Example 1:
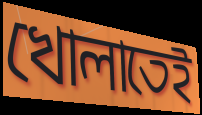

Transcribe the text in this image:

খোলাতেই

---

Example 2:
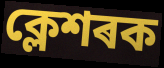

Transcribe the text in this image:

ক্লেশৰক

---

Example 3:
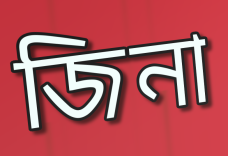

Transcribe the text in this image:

জিনা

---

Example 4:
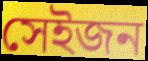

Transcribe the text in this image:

সেইজন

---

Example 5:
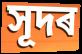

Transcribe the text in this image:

সূদৰ